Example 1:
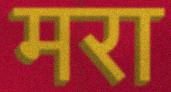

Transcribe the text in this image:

मरा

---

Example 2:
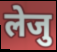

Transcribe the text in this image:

लेजु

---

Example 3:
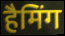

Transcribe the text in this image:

हैमिंग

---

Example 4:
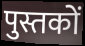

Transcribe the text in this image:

पुस्तकों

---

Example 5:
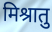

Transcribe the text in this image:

मिश्रातु